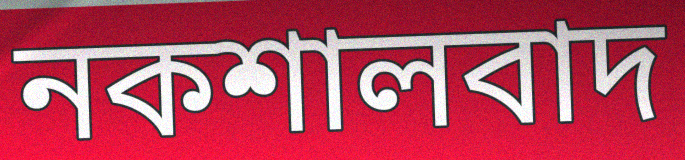
নকশালবাদ